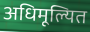
अधिमूल्यित